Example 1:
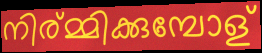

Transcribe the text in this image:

നിര്മ്മിക്കുമ്പോള്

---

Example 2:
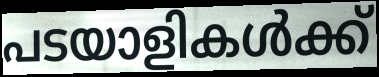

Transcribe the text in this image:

പടയാളികൾക്ക്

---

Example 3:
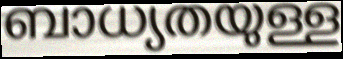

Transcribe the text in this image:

ബാധ്യതയുള്ള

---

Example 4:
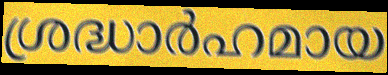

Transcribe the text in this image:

ശ്രദ്ധാർഹമായ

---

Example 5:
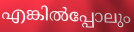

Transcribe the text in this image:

എങ്കിൽപ്പോലും